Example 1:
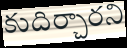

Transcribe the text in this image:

కుదిర్చారని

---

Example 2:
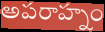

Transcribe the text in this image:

అపరాహ్నం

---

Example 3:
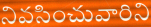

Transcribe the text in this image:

నివసించువారిని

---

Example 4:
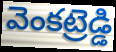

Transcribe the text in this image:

వెంకట్రెడ్డి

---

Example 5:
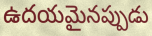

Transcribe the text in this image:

ఉదయమైనప్పుడు